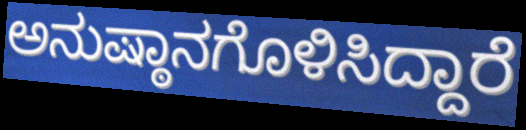
ಅನುಷ್ಠಾನಗೊಳಿಸಿದ್ದಾರೆ